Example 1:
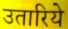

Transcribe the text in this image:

उतारिये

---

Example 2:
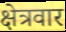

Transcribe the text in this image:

क्षेत्रवार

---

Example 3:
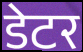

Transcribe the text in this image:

डेटर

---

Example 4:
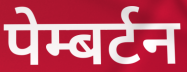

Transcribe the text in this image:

पेम्बर्टन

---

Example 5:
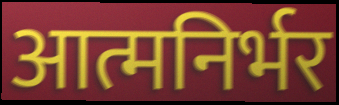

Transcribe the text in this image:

आत्मनिर्भर